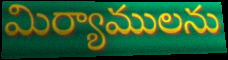
మిర్యాములను